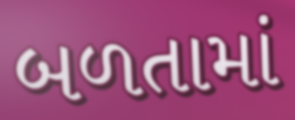
બળતામાં